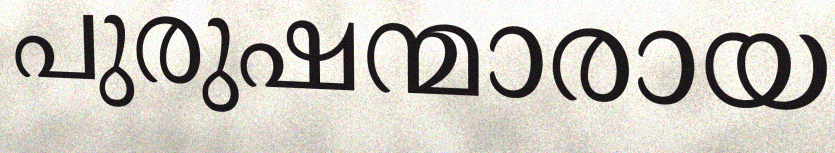
പുരുഷന്മാരായ